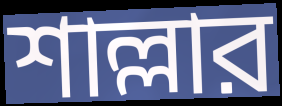
শাল্লার